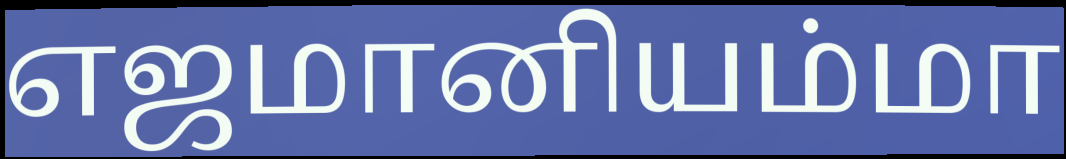
எஜமானியம்மா